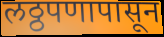
लठ्ठपणापासून